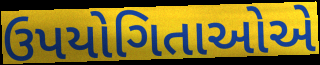
ઉપયોગિતાઓએ